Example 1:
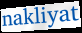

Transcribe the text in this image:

nakliyat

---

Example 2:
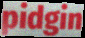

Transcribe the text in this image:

pidgin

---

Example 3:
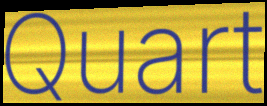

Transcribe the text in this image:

Quart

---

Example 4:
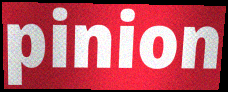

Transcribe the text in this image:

pinion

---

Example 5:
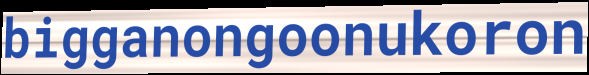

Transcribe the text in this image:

bigganongoonukoron